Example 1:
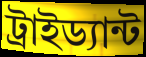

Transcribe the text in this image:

ট্রাইড্যান্ট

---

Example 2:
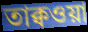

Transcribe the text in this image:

তাক্বওয়া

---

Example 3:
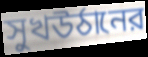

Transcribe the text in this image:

সুখউঠানের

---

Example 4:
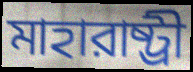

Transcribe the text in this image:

মাহারাষ্ট্রী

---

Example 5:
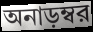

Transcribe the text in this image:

অনাড়ম্বর